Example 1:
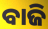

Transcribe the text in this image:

ବାଜି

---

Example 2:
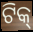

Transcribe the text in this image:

ଟିକ୍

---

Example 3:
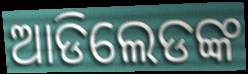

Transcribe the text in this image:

ଆଡିଲେଡଙ୍କ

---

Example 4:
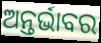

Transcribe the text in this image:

ଅନ୍ତର୍ଭାବର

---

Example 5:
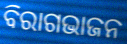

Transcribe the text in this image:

ବିରାଗଭାଜନ